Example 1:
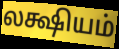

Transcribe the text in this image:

லக்ஷியம்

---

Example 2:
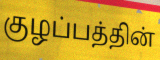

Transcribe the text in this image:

குழப்பத்தின்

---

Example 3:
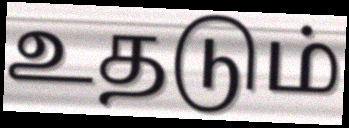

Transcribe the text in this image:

உதடும்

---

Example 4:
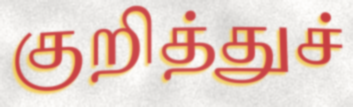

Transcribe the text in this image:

குறித்துச்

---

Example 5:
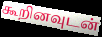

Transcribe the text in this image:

கூறினவுடன்